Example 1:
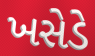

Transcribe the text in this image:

ખસેડે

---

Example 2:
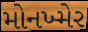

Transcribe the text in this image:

મોનખ્મેર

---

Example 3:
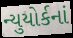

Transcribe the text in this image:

ન્યુયોર્કનાં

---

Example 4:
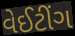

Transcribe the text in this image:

વેઈટીંગ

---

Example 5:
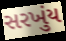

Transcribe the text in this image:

સરખુંય